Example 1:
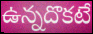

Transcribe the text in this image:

ఉన్నదొకటే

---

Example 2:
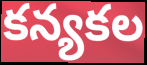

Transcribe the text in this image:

కన్యకల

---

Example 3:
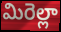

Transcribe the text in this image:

మిరెల్లా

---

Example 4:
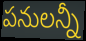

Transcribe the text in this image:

పనులన్నీ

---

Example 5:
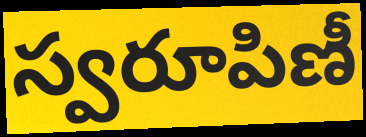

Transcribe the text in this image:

స్వరూపిణీ